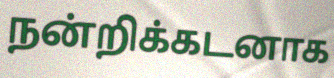
நன்றிக்கடனாக